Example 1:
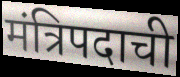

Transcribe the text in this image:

मंत्रिपदाची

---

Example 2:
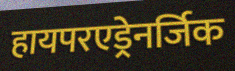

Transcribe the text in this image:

हायपरएड्रेनर्जिक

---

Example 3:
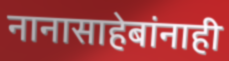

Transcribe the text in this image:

नानासाहेबांनाही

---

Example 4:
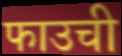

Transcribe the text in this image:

फाउची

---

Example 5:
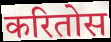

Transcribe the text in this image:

करितोस